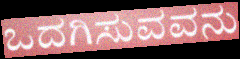
ಒದಗಿಸುವವನು